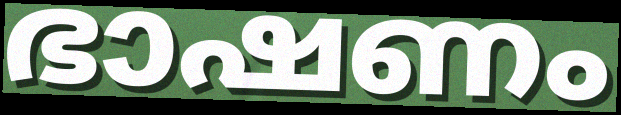
ഭാഷണം